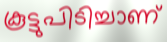
കൂട്ടുപിടിച്ചാണ്